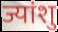
ज्यांशु